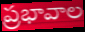
ప్రభావాల